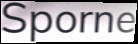
Sporne